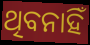
ଥିବନାହିଁ